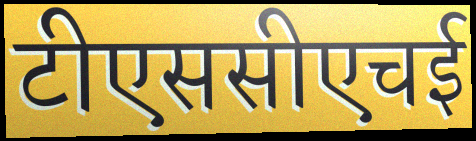
टीएससीएचई